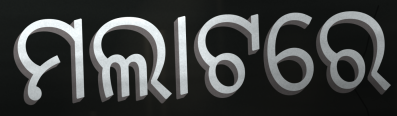
ମଲାଟରେ